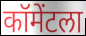
कॉमेंटला